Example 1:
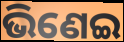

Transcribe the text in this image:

ଭିଣେଇ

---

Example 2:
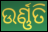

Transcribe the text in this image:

ଉର୍ଣ୍ଣତି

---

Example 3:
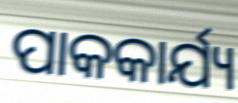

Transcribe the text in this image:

ପାକକାର୍ଯ୍ୟ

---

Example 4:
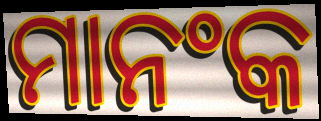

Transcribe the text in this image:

ମାନଂକ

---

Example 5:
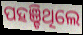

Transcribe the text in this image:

ପହଞ୍ଚିଥିଲେ